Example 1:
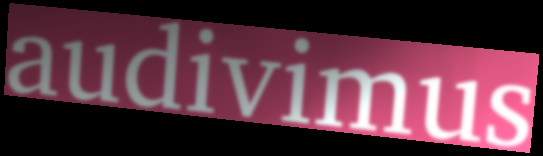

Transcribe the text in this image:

audivimus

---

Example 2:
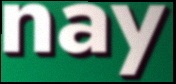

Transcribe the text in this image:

nay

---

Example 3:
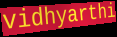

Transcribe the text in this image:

vidhyarthi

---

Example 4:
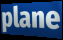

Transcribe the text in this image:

plane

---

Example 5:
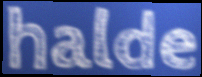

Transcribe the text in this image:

halde